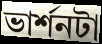
ভার্শনটা